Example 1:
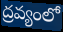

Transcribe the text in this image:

ద్రవ్యంలో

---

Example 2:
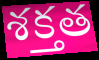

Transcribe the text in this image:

శక్తత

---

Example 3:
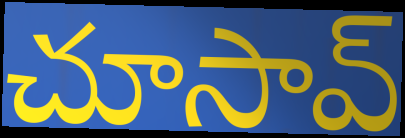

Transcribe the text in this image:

చూసావ్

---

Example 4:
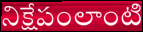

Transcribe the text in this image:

నిక్షేపంలాంటి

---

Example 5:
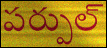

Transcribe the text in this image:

పర్పుల్